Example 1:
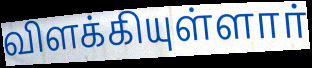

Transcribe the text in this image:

விளக்கியுள்ளார்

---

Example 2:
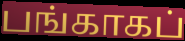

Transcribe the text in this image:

பங்காகப்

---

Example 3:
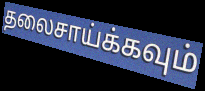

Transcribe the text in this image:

தலைசாய்க்கவும்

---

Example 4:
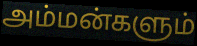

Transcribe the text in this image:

அம்மன்களும்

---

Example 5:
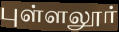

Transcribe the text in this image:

புள்ளலூர்